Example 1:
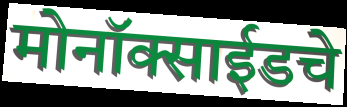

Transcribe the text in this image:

मोनॉक्साईडचे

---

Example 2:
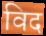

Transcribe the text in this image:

विद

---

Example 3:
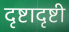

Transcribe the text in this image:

दृष्टादृष्टी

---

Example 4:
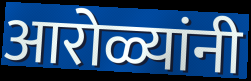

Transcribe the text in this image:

आरोळ्यांनी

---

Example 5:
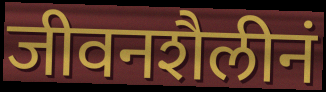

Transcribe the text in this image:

जीवनशैलीनं